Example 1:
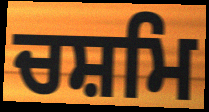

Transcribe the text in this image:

ਚਸ਼ਮਿ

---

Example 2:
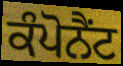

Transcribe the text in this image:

ਕੰਪੋਨੈਂਟ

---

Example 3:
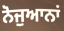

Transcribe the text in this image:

ਨੋਜੁਆਨਾਂ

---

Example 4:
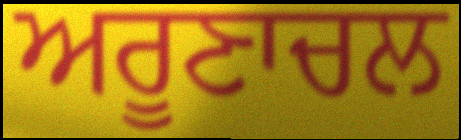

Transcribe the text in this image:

ਅਰੂਣਾਚਲ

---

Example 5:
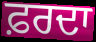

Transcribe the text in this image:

ਫ਼ਰਦਾ